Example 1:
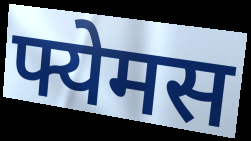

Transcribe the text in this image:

फ्येमस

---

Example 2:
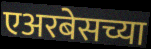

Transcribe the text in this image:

एअरबेसच्या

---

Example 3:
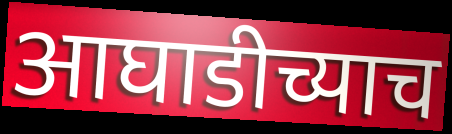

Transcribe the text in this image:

आघाडीच्याच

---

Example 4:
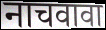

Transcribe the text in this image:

नाचवावा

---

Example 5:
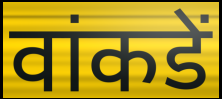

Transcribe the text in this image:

वांकडें